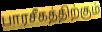
பாரசீகத்திற்கும்